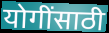
योगींसाठी